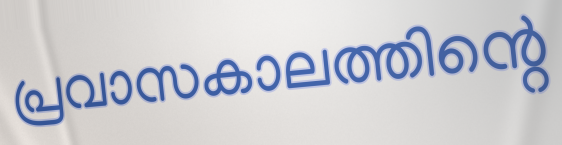
പ്രവാസകാലത്തിന്റെ